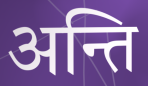
अन्ति